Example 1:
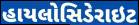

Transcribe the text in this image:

હાયલોસિડેરાઇટ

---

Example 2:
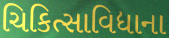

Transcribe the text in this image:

ચિકિત્સાવિદ્યાના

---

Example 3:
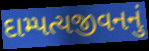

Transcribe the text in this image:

દામ્પત્યજીવનનું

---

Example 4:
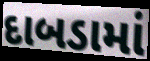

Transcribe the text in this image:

દાબડામાં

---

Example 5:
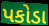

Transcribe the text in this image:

પકોડા